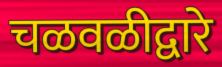
चळवळीद्वारे